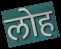
लोह